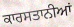
ਕਾਰਸਤਾਨੀਆਂ